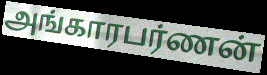
அங்காரபர்ணன்